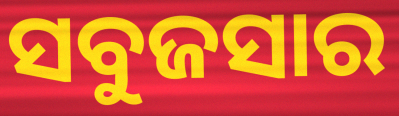
ସବୁଜସାର